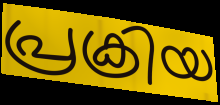
പ്രക്രിയ